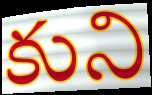
కుని